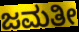
ಜಮತೀ